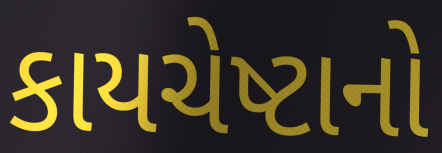
કાયચેષ્ટાનો